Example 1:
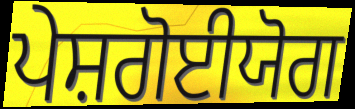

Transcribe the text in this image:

ਪੇਸ਼ਗੋਈਯੋਗ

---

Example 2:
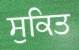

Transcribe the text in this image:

ਸੁਕਿਤ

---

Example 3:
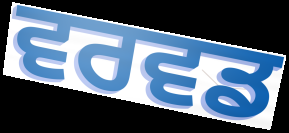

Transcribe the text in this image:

ਵਰਵਡ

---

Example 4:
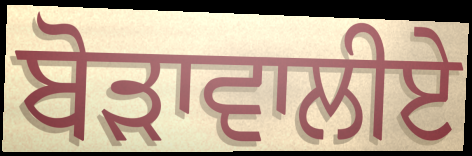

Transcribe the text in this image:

ਬੋੜਾਵਾਲੀਏ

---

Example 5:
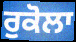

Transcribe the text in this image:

ਰੁਕੋਲਾ